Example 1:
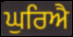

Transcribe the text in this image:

ਘੁਰਿਐ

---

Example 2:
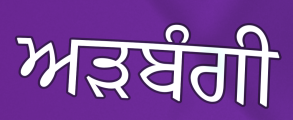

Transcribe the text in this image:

ਅੜਬੰਗੀ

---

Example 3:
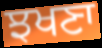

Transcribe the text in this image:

ਝਖਣਾ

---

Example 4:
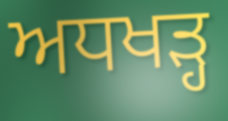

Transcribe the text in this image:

ਅਧਖੜ੍ਹ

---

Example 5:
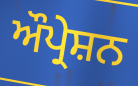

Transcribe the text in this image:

ਔਪ੍ਰੇਸ਼ਨ